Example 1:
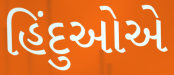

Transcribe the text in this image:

હિંદુઓએ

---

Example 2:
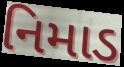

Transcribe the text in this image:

નિમાડ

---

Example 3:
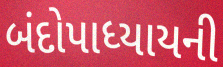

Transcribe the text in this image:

બંદોપાધ્યાયની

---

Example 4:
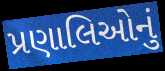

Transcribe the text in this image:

પ્રણાલિઓનું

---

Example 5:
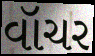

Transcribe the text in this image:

વૉચર